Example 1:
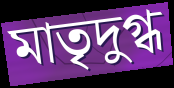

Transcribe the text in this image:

মাতৃদুগ্ধ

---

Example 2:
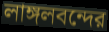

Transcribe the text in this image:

লাঙ্গলবন্দের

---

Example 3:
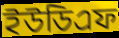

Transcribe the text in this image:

ইউডিএফ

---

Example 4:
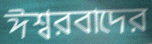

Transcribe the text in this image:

ঈশ্বরবাদের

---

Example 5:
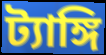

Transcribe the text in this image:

ট্যাঙ্গি